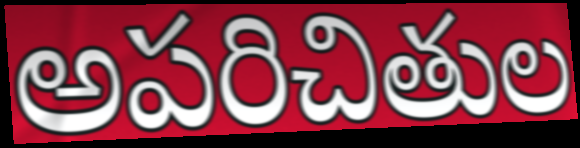
అపరిచితుల